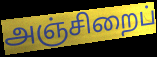
அஞ்சிறைப்